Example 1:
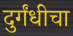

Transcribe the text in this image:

दुर्गंधीचा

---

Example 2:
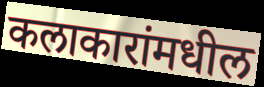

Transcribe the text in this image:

कलाकारांमधील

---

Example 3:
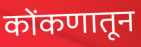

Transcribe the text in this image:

कोंकणातून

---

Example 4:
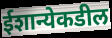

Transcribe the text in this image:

ईशान्येकडील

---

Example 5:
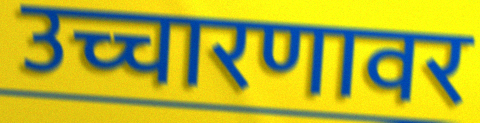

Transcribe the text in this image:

उच्चारणावर